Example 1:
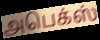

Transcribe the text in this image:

அபெக்ஸ்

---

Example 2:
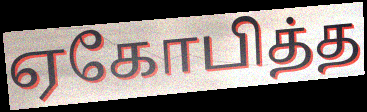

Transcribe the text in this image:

ஏகோபித்த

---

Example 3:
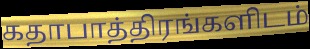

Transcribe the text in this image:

கதாபாத்திரங்களிடம்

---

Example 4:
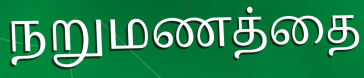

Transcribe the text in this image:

நறுமணத்தை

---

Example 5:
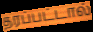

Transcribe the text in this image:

தரப்பட்டால்